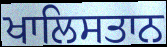
ਖਾਲਿਸਤਾਨ